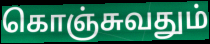
கொஞ்சுவதும்